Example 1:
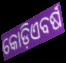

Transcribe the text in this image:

କୋଡ଼ିଏବର୍ଷ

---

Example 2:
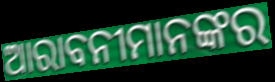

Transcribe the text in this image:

ଆରାବନୀମାନଙ୍କର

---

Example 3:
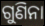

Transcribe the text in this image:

ଗୁଣିନା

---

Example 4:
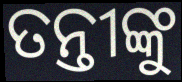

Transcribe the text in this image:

ତନ୍ତୀଙ୍କୁ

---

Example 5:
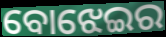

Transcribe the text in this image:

ବୋଝେଇର